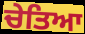
ਚੇਤਿਆ